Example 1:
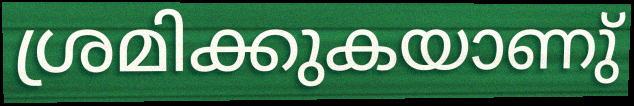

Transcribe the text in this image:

ശ്രമിക്കുകയാണു്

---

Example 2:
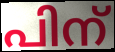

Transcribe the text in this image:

പിന്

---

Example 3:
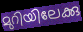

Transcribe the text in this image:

മുറിയിലേക്കു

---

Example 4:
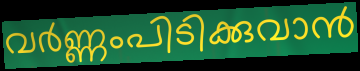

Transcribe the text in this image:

വർണ്ണംപിടിക്കുവാൻ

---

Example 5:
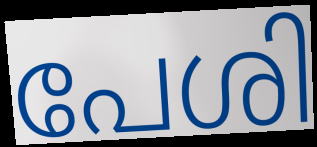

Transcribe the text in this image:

പേശി